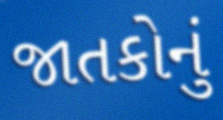
જાતકોનું